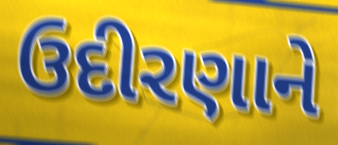
ઉદીરણાને